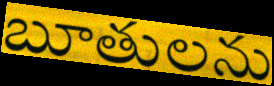
బూతులను